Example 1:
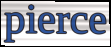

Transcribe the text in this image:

pierce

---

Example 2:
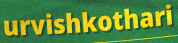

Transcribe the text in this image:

urvishkothari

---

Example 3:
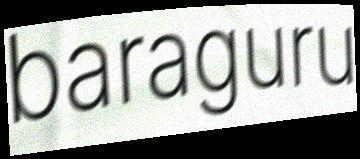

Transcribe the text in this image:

baraguru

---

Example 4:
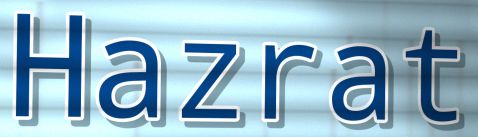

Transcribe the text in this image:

Hazrat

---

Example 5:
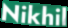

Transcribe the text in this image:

Nikhil